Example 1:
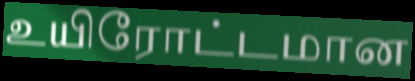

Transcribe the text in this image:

உயிரோட்டமான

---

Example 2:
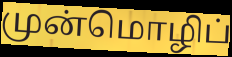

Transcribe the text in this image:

முன்மொழிப்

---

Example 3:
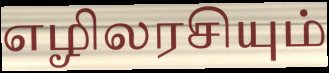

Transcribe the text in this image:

எழிலரசியும்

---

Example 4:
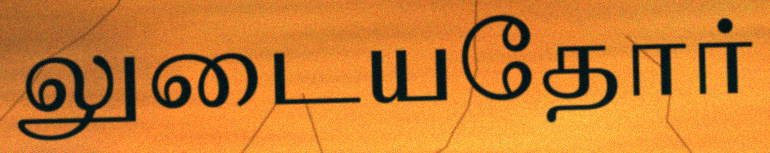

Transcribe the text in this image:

லுடையதோர்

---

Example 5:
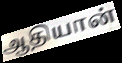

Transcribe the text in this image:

ஆதியான்